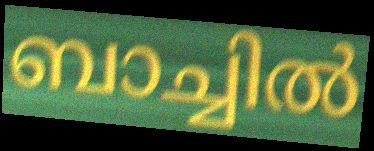
ബാച്ചിൽ